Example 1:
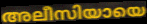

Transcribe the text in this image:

അലീസിയായെ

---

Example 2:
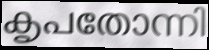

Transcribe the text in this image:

കൃപതോന്നി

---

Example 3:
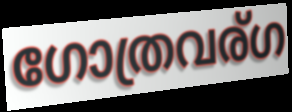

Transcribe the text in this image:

ഗോത്രവര്ഗ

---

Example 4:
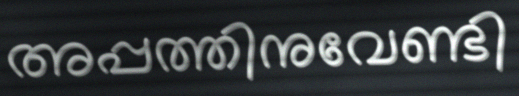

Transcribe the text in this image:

അപ്പത്തിനുവേണ്ടി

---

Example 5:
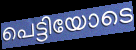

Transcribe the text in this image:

പെട്ടിയോടെ